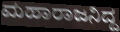
ಮಹಾರಾಜನಿದ್ದ